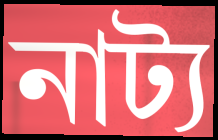
নাট্য